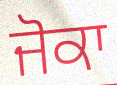
ਜੋਕਾ